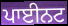
ਪਾਈਨਟ